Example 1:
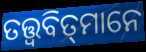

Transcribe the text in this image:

ତତ୍ତ୍ୱବିତ୍‌ମାନେ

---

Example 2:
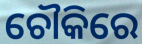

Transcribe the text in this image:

ଚୌକିରେ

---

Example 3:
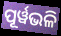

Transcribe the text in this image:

ପୂର୍ୱଭଳି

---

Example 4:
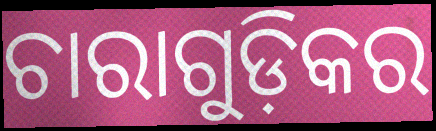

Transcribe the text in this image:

ଚାରାଗୁଡ଼ିକର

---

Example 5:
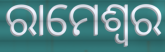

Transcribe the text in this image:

ରାମେଶ୍ୱର